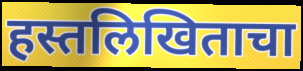
हस्तलिखिताचा